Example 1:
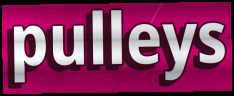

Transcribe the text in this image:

pulleys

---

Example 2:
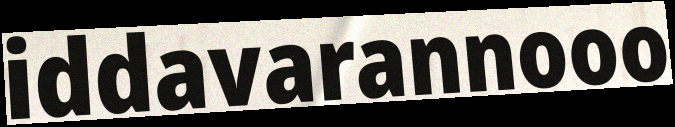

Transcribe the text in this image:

iddavarannooo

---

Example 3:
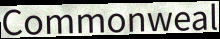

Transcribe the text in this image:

Commonweal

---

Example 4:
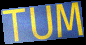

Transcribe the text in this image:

TUM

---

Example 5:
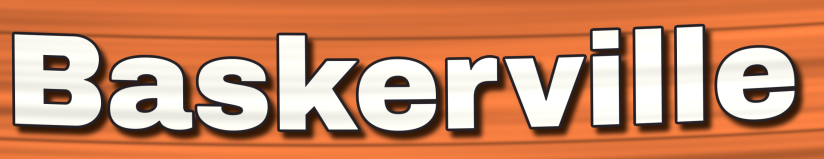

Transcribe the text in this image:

Baskerville